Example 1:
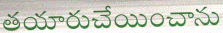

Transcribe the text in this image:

తయారుచేయించాను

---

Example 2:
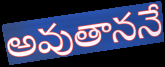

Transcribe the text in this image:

అవుతాననే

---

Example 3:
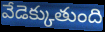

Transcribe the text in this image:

వేడెక్కుతుంది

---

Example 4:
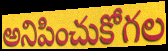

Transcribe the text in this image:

అనిపించుకోగల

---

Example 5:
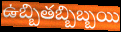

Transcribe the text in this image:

ఉబ్బితబ్బిబ్బయి